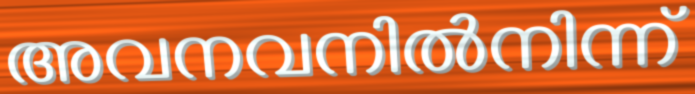
അവനവനിൽനിന്ന്